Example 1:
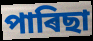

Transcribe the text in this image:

পাৰিছা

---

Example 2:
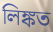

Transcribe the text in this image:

লিঙ্কত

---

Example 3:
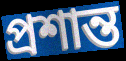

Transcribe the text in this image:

প্ৰশান্ত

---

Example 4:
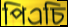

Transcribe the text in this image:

পিএচি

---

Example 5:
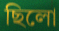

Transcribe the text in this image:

ছিলো